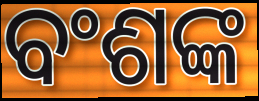
ବଂଶଙ୍କ